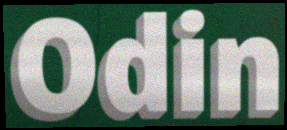
Odin